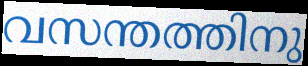
വസന്തത്തിനു